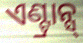
ଏଣ୍ଟ୍ରାନ୍ସ୍